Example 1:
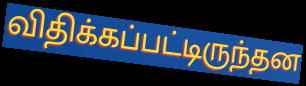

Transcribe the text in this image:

விதிக்கப்பட்டிருந்தன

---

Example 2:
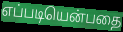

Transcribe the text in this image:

எப்படியென்பதை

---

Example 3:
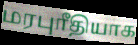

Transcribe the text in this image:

மரபுரீதியாக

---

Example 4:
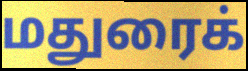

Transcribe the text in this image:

மதுரைக்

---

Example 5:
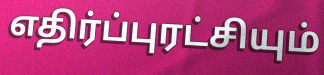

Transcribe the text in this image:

எதிர்ப்புரட்சியும்